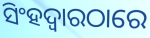
ସିଂହଦ୍ୱାରଠାରେ